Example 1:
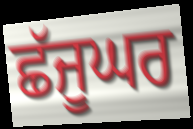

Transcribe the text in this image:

ਛੱਜੂਘਰ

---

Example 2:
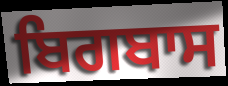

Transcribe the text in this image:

ਬਿਗਬਾਸ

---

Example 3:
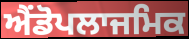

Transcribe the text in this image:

ਐਂਡੋਪਲਾਜਮਿਕ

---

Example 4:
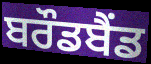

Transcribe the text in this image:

ਬਰੌਡਬੈਂਡ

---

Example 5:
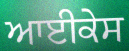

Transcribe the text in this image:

ਆਈਕੇਸ